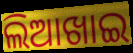
ଲିଆଖାଇ